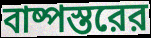
বাষ্পস্তরের